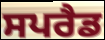
ਸਪਰੈਡ